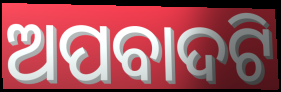
ଅପବାଦଟି